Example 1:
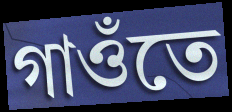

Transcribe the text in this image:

গাওঁতে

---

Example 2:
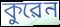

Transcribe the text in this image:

কুৱেন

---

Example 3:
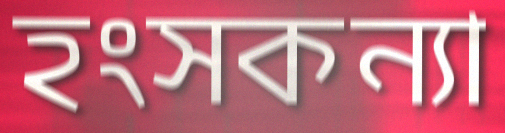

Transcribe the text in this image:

হংসকন্যা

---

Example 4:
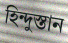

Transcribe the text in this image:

হিন্দুস্তান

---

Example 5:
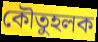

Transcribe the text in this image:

কৌতুহলক